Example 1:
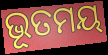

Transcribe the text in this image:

ଭୂତମୟ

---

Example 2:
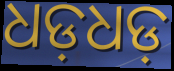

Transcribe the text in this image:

ଧଡ଼ଧଡ଼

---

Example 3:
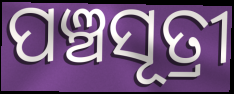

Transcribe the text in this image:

ପଞ୍ଚସୂତ୍ରୀ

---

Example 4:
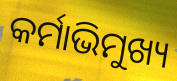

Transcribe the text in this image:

କର୍ମାଭିମୁଖ୍ୟ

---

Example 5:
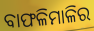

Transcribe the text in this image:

ବାଫଳିମାଳିର